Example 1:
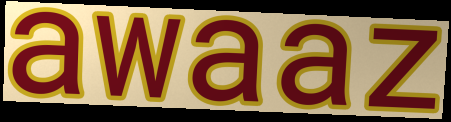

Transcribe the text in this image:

awaaz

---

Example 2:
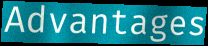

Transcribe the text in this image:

Advantages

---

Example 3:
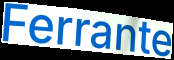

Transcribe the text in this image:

Ferrante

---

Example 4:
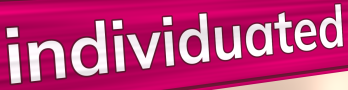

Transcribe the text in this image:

individuated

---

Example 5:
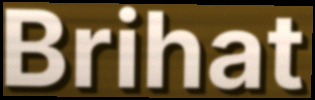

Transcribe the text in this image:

Brihat